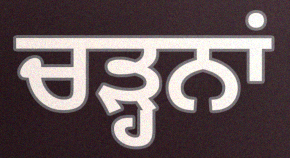
ਚੜ੍ਹਨਾਂ